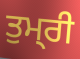
ਤੁਮ੍‍ਰੀ